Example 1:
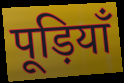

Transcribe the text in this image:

पूड़ियाँ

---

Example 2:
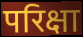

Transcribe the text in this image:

परिक्षा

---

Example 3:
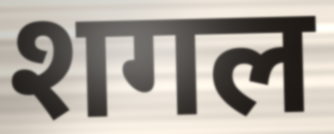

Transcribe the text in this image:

शगल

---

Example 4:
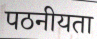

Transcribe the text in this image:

पठनीयता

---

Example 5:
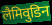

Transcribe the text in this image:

लैमिवुडिन